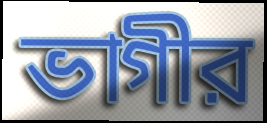
ভাগীর